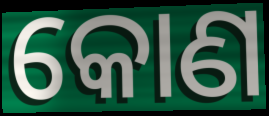
କୋଣ